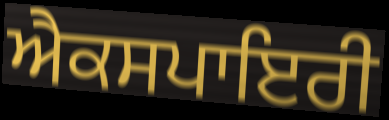
ਐਕਸਪਾਇਰੀ